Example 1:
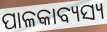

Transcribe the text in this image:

ପାଳକାବ୍ୟସ୍ୟ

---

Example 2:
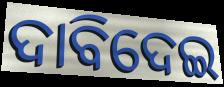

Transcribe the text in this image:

ଦାବିଦେଇ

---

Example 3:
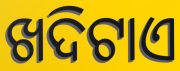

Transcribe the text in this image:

ଖଦିଟାଏ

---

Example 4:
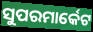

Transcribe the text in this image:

ସୁପରମାର୍କେଟ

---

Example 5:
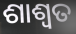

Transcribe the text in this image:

ଶାଶ୍ଵତ